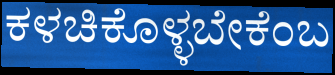
ಕಳಚಿಕೊಳ್ಳಬೇಕೆಂಬ